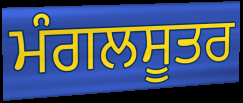
ਮੰਗਲਸੂਤਰ